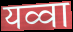
यव्वा